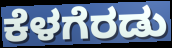
ಕೆಳಗೆರಡು